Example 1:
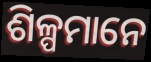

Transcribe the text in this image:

ଶିଳ୍ପମାନେ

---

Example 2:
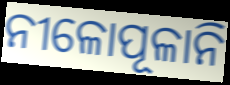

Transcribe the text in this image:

ନୀଳୋପୂଳାନି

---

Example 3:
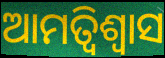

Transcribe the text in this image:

ଆମତ୍ବିଶ୍ୱାସ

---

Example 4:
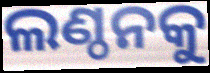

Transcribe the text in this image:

ଲଣ୍ଠନକୁ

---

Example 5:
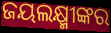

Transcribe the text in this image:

ଜୟଲକ୍ଷ୍ମୀଙ୍କର